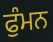
ਫੁੰਮਨ